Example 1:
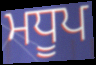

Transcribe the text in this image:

ਮਧੂਪ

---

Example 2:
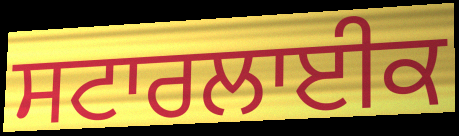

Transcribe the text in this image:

ਸਟਾਰਲਾਈਕ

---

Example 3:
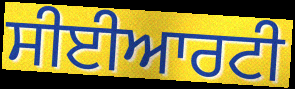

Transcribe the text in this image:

ਸੀਈਆਰਟੀ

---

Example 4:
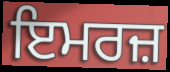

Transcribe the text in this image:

ਇਮਰਜ਼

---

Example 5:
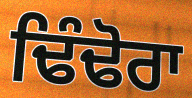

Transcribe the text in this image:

ਢਿੰਢੋਰਾ